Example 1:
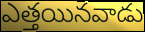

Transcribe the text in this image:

ఎత్తయినవాడు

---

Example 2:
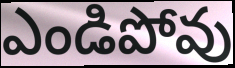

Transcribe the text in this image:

ఎండిపోవు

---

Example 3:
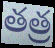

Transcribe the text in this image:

తత్ర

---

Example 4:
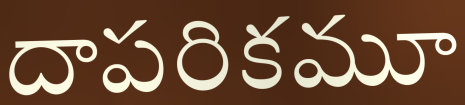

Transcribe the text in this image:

దాపరికమూ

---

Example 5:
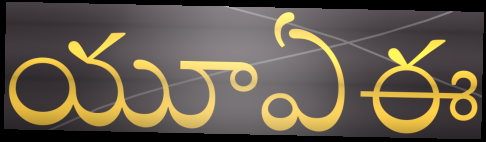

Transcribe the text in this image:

యూఏఈ